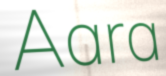
Aara